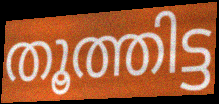
തൂത്തിട്ട